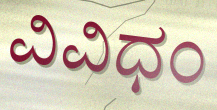
ವಿವಿಧಂ